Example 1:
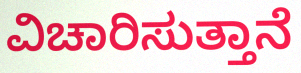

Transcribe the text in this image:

ವಿಚಾರಿಸುತ್ತಾನೆ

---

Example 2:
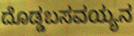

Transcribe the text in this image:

ದೊಡ್ಡಬಸವಯ್ಯನ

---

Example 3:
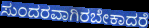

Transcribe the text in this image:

ಸುಂದರವಾಗಿರಬೇಕಾದರೆ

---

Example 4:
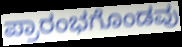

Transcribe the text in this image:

ಪ್ರಾರಂಭಗೊಂಡವು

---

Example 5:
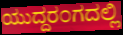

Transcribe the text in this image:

ಯುದ್ದರಂಗದಲ್ಲಿ